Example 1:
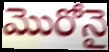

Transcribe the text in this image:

మొరోనై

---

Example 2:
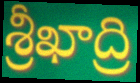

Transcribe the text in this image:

శ్రీఖాద్రి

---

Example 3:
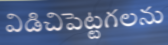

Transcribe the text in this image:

విడిచిపెట్టగలను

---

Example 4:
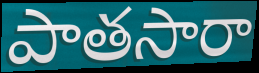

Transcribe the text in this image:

పాతసారా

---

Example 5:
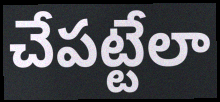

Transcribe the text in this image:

చేపట్టేలా